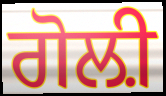
ਗੋਲ਼ੀ